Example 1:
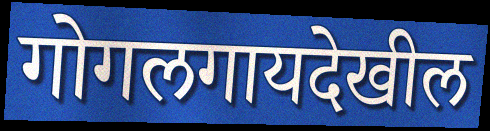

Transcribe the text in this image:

गोगलगायदेखील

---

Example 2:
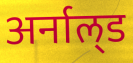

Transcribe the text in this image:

अर्नाल्ड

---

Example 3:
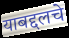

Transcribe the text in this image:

याबद्दलचे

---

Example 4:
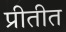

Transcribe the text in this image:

प्रीतीत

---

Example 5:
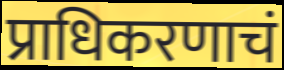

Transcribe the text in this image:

प्राधिकरणाचं